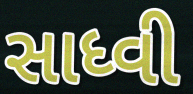
સાધ્વી